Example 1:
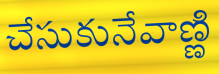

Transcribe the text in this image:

చేసుకునేవాణ్ణి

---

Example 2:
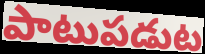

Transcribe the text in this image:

పాటుపడుట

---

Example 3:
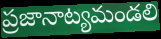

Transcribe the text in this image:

ప్రజానాట్యమండలి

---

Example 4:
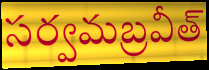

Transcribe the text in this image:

సర్వమబ్రవీత్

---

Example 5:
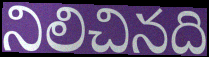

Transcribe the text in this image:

నిలిచినది